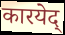
कारयेद्